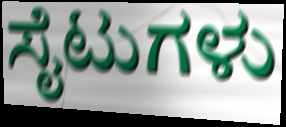
ಸೈಟುಗಳು